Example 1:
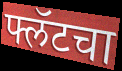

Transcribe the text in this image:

फ्लॅटचा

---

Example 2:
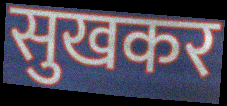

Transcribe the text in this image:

सुखकर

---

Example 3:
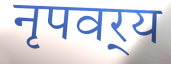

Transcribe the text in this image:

नृपवर्य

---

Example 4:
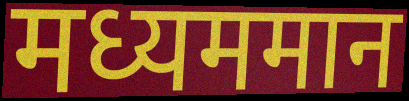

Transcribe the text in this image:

मध्यममान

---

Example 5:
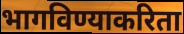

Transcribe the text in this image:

भागविण्याकरिता